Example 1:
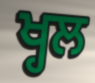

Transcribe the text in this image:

ਖ੍ਹਲ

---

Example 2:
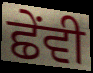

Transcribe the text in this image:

ਛੇੰਵੀ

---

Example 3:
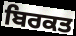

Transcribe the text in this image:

ਬਿਰਕਤ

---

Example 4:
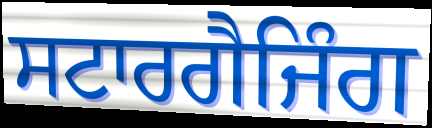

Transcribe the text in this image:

ਸਟਾਰਗੈਜਿੰਗ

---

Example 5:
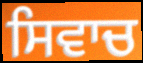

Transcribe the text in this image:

ਸਿਵਾਚ